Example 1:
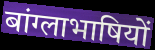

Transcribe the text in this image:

बांग्लाभाषियों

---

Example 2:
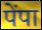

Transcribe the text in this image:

पेंपा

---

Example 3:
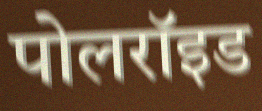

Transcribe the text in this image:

पोलरॉइड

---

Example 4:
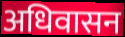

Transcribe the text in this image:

अधिवासन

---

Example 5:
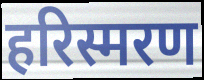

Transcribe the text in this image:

हरिस्मरण